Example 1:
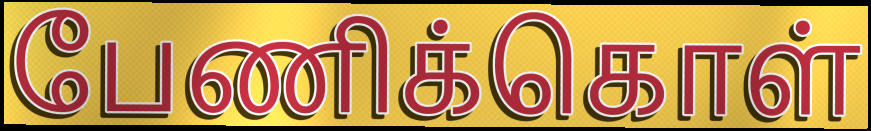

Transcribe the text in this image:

பேணிக்கொள்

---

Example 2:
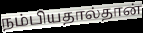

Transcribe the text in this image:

நம்பியதால்தான்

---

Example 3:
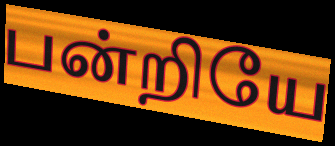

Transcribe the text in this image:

பன்றியே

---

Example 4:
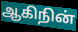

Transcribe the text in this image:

ஆகிநின்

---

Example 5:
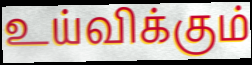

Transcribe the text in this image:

உய்விக்கும்